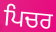
ਪਿਚਰ